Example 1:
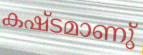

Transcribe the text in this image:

കഷ്ടമാണു്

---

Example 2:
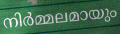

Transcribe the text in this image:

നിർമ്മലമായും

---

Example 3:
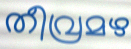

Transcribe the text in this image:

തീവ്രമഴ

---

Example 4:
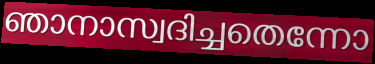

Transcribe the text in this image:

ഞാനാസ്വദിച്ചതെന്നോ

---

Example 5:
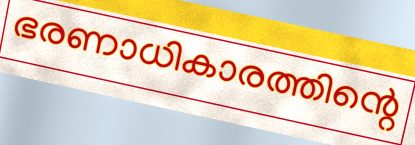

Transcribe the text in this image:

ഭരണാധികാരത്തിന്റെ